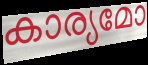
കാര്യമോ